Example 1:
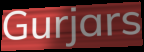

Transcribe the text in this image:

Gurjars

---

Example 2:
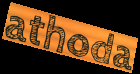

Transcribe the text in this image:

athoda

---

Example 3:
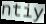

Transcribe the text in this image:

ntiy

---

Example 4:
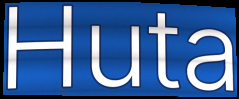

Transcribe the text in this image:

Huta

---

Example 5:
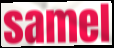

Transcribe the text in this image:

samel